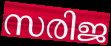
സരിജ